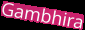
Gambhira